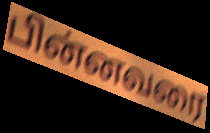
பின்னவரை